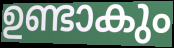
ഉണ്ടാകും